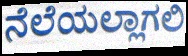
ನೆಲೆಯಲ್ಲಾಗಲಿ